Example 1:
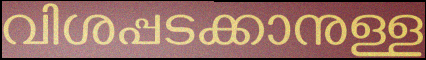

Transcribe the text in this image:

വിശപ്പടക്കാനുള്ള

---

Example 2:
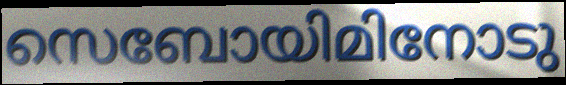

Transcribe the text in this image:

സെബോയിമിനോടു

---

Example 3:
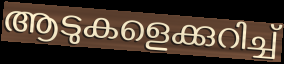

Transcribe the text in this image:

ആടുകളെക്കുറിച്ച്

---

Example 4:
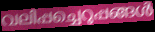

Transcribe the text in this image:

വലിപ്പച്ചെറുപ്പങ്ങൾ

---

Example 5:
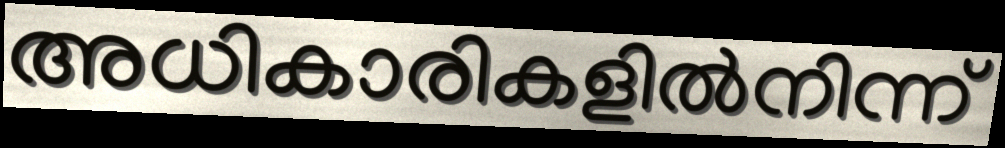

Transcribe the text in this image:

അധികാരികളിൽനിന്ന്